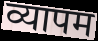
व्यापम